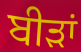
ਬੀੜਾਂ